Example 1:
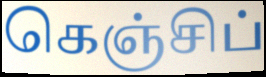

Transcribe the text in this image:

கெஞ்சிப்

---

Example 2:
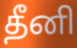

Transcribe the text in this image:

தீனி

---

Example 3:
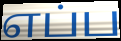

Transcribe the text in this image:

எப்ப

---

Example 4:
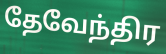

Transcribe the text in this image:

தேவேந்திர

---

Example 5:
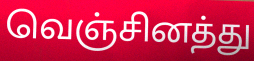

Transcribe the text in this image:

வெஞ்சினத்து